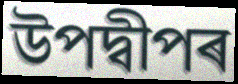
উপদ্বীপৰ